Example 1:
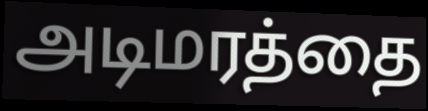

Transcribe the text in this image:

அடிமரத்தை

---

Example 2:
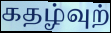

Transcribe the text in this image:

கதழ்வுற்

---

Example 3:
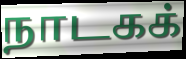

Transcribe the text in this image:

நாடகக்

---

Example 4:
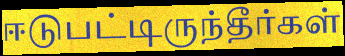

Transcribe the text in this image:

ஈடுபட்டிருந்தீர்கள்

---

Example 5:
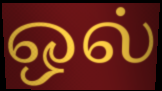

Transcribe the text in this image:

ஒல்